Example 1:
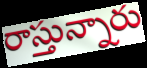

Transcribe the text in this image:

రాస్తున్నారు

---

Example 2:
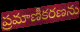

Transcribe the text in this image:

ప్రమాణీకరణను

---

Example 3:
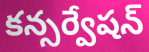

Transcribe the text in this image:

కన్సర్వేషన్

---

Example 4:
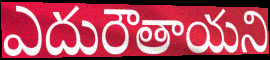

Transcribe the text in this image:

ఎదురౌతాయని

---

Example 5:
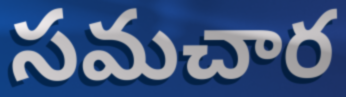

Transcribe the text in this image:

సమచార